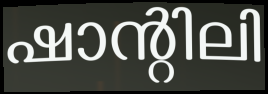
ഷാന്റിലി